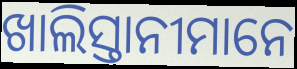
ଖାଲିସ୍ତାନୀମାନେ